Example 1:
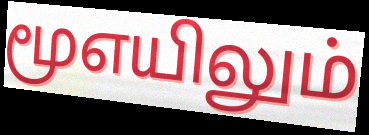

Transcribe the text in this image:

மூஎயிலும்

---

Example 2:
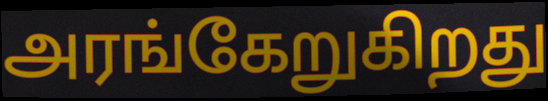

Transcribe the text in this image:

அரங்கேறுகிறது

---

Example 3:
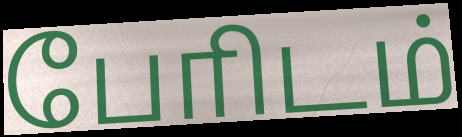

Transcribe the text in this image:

பேரிடம்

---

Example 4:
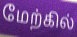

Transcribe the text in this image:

மேற்கில்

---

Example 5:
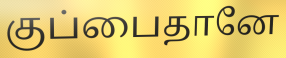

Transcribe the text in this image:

குப்பைதானே